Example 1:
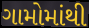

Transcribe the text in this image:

ગામોમાંથી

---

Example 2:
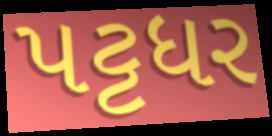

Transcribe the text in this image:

પટ્ટધર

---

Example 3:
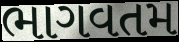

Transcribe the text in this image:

ભાગવતમ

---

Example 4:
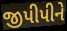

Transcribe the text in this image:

જીપીપીને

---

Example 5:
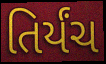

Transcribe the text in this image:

તિર્યંચ